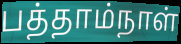
பத்தாம்நாள்